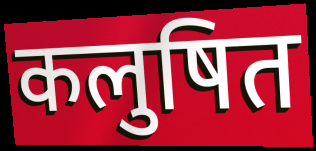
कलुषित